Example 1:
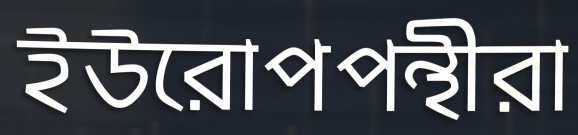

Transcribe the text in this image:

ইউরোপপন্থীরা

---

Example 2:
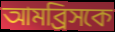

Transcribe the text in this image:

আমব্রিসকে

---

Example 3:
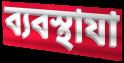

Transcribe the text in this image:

ব্যবস্থাযা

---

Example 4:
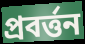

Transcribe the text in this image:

প্রবর্ত্তন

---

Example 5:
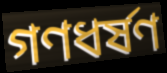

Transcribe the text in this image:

গণধর্ষণ